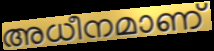
അധീനമാണ്